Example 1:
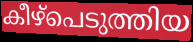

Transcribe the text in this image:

കീഴ്പെടുത്തിയ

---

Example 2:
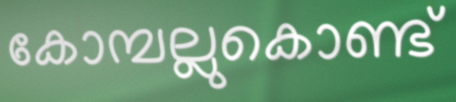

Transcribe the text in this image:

കോമ്പല്ലുകൊണ്ട്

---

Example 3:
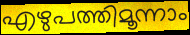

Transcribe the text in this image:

എഴുപത്തിമൂന്നാം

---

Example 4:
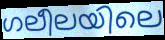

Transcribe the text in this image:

ഗലീലയിലെ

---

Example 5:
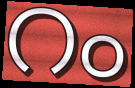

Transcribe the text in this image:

റം